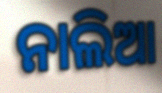
ନାଲିଆ